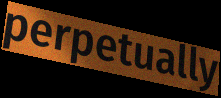
perpetually